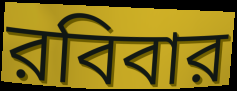
রবিবার